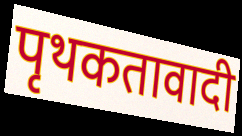
पृथकतावादी